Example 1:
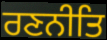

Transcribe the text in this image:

ਰਣਨੀਤਿ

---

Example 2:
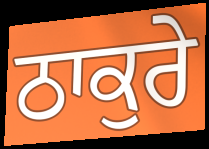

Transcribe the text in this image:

ਠਾਕੁਰੇ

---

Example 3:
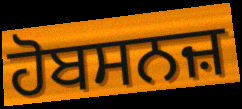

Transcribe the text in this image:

ਹੋਬਸਨਜ਼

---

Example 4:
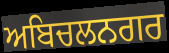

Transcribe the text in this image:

ਅਬਿਚਲਨਗਰ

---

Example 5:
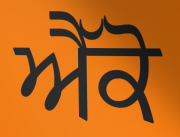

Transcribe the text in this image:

ਐੱਕੋ